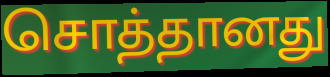
சொத்தானது